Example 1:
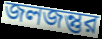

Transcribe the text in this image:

জলজন্তুর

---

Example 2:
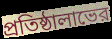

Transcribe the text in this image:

প্রতিষ্ঠালাভের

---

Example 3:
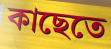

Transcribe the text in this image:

কাছেতে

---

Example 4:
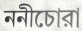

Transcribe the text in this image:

ননীচোরা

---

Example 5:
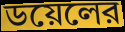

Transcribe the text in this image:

ডয়েলের